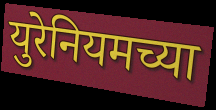
युरेनियमच्या